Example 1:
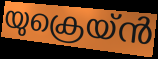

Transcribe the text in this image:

യുക്രെയ്ൻ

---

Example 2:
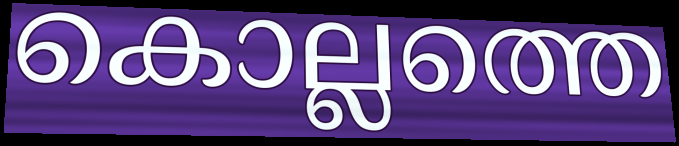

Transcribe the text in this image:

കൊല്ലത്തെ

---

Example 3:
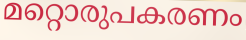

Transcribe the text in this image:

മറ്റൊരുപകരണം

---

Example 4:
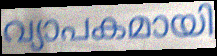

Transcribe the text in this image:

വ്യാപകമായി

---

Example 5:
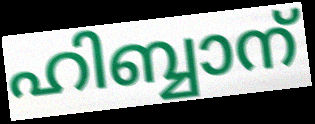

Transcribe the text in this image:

ഹിബ്ബാന്